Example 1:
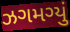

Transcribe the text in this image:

ઝગમગ્યું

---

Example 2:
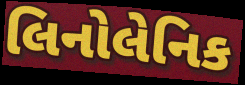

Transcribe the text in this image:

લિનોલેનિક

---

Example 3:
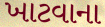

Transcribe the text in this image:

ખાટવાના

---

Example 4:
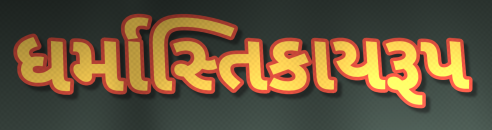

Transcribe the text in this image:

ધર્માસ્તિકાયરૂપ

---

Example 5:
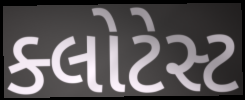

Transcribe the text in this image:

ક્લોટેસ્ટ